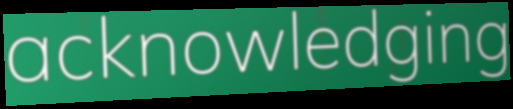
acknowledging